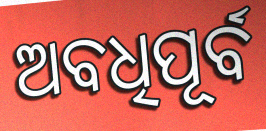
ଅବଧିପୂର୍ବ